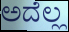
ಅದೆಲ್ಲ